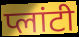
प्लांटी